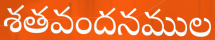
శతవందనముల